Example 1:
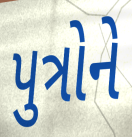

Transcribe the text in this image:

પુત્રોને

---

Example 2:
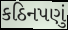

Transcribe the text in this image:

કઠિનપણું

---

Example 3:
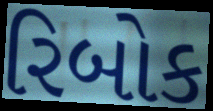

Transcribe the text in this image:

રિબોક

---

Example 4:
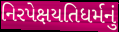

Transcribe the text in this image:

નિરપેક્ષયતિધર્મનું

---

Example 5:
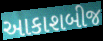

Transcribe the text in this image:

આકાશબીજ